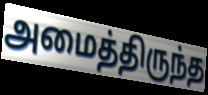
அமைத்திருந்த